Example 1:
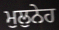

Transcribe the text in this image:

ਮੁਲੁਨੇਹ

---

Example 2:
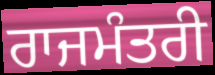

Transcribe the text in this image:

ਰਾਜਮੰਤਰੀ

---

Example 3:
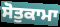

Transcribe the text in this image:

ਸੋਤੁਕਾਮਾ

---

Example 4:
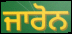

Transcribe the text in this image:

ਜਾਰੋਨ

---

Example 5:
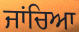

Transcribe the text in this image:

ਜਾਂਚਿਆ